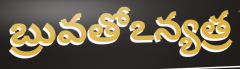
బ్రువతోఽన్యత్ర